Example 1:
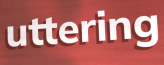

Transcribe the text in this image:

uttering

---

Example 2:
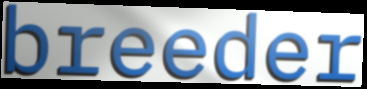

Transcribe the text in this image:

breeder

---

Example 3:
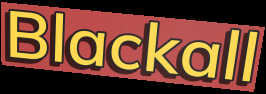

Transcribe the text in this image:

Blackall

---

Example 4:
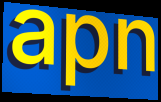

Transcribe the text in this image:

apn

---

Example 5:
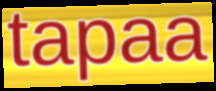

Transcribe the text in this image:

tapaa